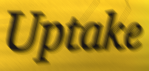
Uptake